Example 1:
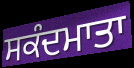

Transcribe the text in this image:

ਸਕੰਦਮਾਤਾ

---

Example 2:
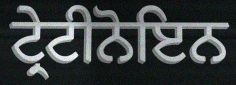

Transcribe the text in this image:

ਟ੍ਰੇਟੀਨੋਇਨ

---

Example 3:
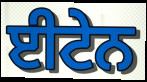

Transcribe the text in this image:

ਈਟੇਨ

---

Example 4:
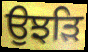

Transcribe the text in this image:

ਉਝੜਿ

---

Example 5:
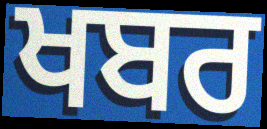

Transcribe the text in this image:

ਖਬਰ